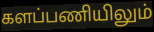
களப்பணியிலும்